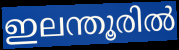
ഇലന്തൂരിൽ